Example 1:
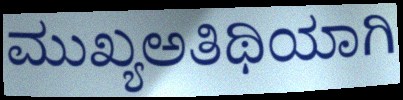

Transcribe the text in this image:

ಮುಖ್ಯಅತಿಥಿಯಾಗಿ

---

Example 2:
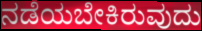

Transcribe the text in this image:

ನಡೆಯಬೇಕಿರುವುದು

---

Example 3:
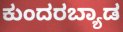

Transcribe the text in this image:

ಕುಂದರಬ್ಯಾಡ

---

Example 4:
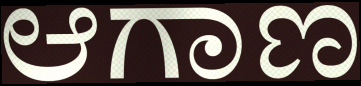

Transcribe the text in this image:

ಆಗಾಣ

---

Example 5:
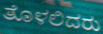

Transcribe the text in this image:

ತೊಳಲಿದರು